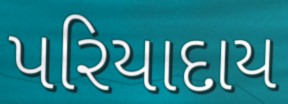
પરિયાદાય